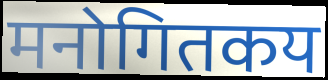
मनोगितकय